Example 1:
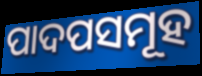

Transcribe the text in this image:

ପାଦପସମୂହ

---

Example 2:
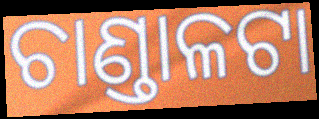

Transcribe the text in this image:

ଚାଣ୍ଡାଳଟା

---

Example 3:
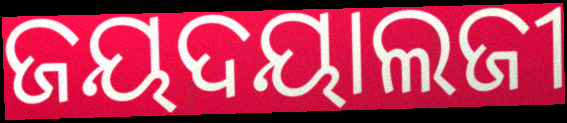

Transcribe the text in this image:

ଜୟଦୟାଲଜୀ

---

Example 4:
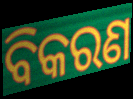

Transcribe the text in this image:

ବିକରଣ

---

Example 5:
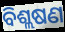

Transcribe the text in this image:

ବିଶ୍ଲଷଣ